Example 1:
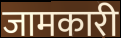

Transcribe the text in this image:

जामकारी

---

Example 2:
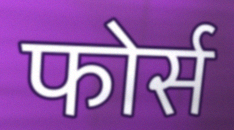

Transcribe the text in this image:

फोर्स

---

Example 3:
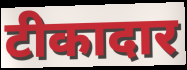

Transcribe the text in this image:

टीकादार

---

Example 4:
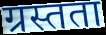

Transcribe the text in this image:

ग्रस्तता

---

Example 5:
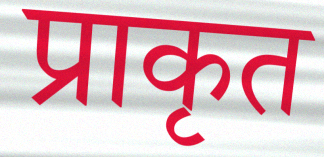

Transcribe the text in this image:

प्राकृत